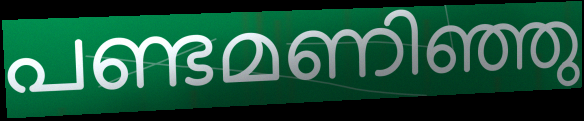
പണ്ടമണിഞ്ഞു